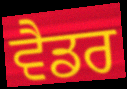
ਵੈਡਰ